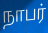
நாபர்